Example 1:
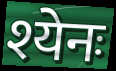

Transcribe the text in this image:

श्येनः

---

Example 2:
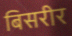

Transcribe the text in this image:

बिसरीर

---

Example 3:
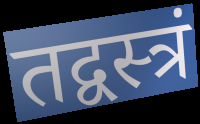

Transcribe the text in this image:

तद्वस्त्रं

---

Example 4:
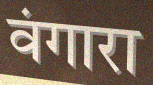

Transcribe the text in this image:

वंगारा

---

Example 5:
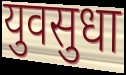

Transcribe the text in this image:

युवसुधा